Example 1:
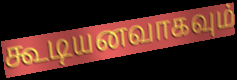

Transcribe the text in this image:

கூடியனவாகவும்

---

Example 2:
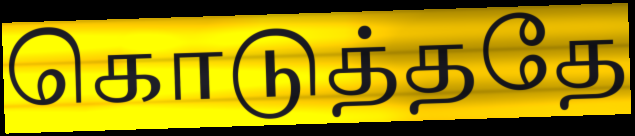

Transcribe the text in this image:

கொடுத்ததே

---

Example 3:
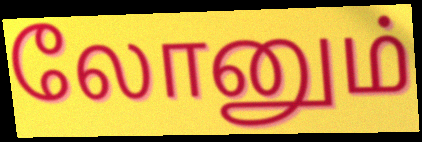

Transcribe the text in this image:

லோனும்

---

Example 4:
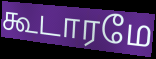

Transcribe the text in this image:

கூடாரமே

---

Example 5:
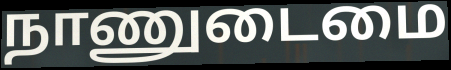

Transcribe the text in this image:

நாணுடைமை